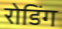
रोडिंग